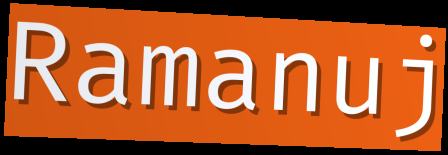
Ramanuj